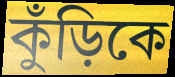
কুঁড়িকে